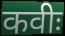
कवीः